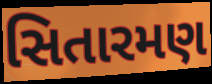
સિતારમણ